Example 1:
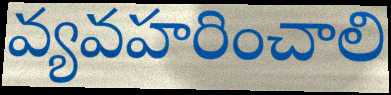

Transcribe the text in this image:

వ్యవహరించాలి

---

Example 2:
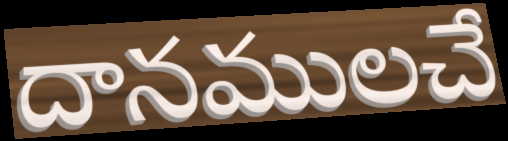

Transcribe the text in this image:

దానములచే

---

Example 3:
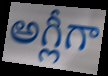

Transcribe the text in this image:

అగ్లీగా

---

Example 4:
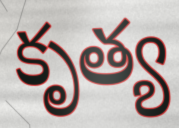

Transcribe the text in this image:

కృత్య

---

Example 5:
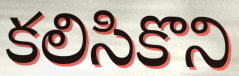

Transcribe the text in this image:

కలిసికొని